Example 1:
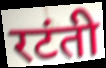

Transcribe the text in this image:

रटंती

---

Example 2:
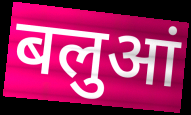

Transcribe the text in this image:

बलुआं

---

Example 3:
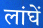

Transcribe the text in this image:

लांघें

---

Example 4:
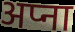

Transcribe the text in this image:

अप्ना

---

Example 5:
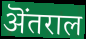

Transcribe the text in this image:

ऄंतराल